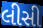
લીસી